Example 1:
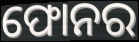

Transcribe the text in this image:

ଫୋନର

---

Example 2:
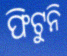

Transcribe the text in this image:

ଫିଟୁନି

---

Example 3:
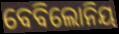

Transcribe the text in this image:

ବେବିଲୋନିୟ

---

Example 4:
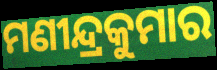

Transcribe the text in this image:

ମଣୀନ୍ଦ୍ରକୁମାର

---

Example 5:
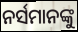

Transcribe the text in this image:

ନର୍ସମାନଙ୍କୁ